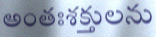
అంతఃశక్తులను